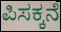
ಪಿಸಕ್ಕನೆ